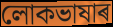
লোকভাষাৰ